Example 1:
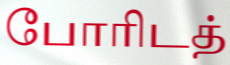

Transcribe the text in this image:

போரிடத்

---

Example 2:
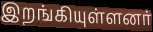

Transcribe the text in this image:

இறங்கியுள்ளனர்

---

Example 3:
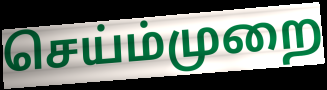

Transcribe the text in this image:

செய்ம்முறை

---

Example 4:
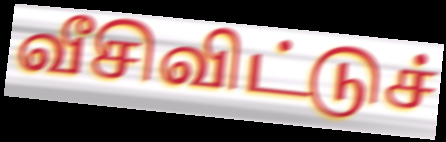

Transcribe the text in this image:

வீசிவிட்டுச்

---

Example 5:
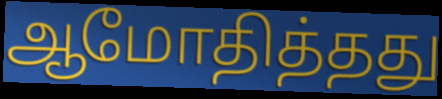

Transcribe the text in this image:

ஆமோதித்தது